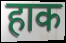
हाक